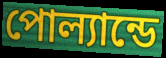
পোল্যান্ডে